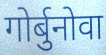
गोर्बुनोवा